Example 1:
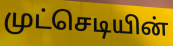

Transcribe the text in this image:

முட்செடியின்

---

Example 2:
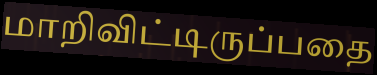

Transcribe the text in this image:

மாறிவிட்டிருப்பதை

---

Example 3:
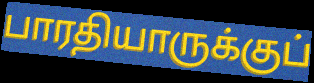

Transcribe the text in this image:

பாரதியாருக்குப்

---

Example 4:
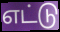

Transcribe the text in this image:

எட்டு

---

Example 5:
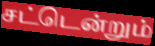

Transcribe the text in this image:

சட்டென்றும்